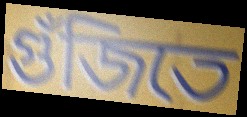
গুঁজিতে